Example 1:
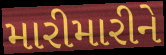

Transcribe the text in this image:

મારીમારીને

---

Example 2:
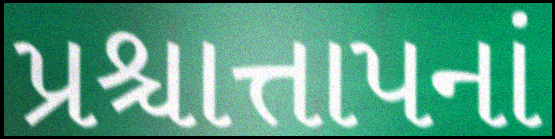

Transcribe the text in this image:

પ્રશ્ચાત્તાપનાં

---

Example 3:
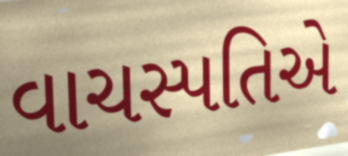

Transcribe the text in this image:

વાચસ્પતિએ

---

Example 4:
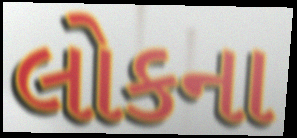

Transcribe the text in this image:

લોકના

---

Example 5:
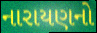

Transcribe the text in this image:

નારાયણનો